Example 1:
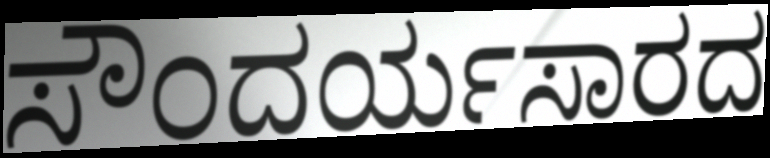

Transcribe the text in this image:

ಸೌಂದರ್ಯಸಾರದ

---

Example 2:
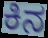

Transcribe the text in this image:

ಕಿನ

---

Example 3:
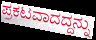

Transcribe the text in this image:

ಪ್ರಕಟವಾದದ್ದನ್ನು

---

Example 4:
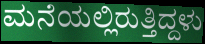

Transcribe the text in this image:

ಮನೆಯಲ್ಲಿರುತ್ತಿದ್ದಳು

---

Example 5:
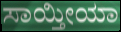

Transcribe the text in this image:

ಸಾಯ್ತೀಯಾ